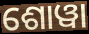
ଶୋୱା